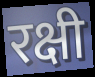
रक्षी